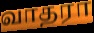
வாதரா